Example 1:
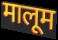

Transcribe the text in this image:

मालूम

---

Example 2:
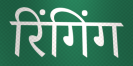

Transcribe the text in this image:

रिंगिंग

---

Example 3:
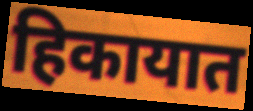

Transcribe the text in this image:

हिकायात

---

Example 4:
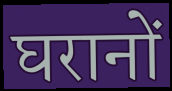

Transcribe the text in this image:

घरानों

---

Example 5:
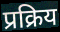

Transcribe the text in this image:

प्रक्रिय